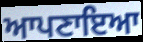
ਆਪਣਾਇਆ